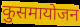
कुसमायोजन